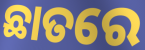
ଛାତରେ